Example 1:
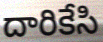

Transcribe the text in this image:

దారికేసి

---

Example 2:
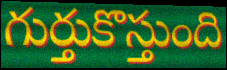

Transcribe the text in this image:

గుర్తుకొస్తుంది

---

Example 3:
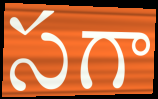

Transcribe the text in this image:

సగా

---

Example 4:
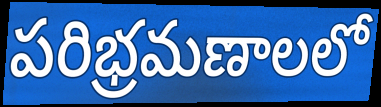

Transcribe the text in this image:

పరిభ్రమణాలలో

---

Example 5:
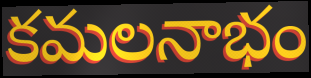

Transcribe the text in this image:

కమలనాభం